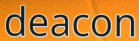
deacon